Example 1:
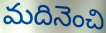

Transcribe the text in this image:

మదినెంచి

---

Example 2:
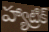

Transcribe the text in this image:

హ్యాట్రిక్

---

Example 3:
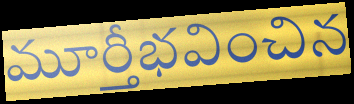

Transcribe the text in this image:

మూర్తీభవించిన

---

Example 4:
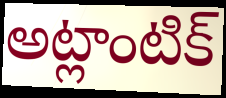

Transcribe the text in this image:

అట్లాంటిక్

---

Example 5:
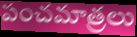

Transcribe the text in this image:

పంచమాత్రలు